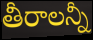
తీరాలన్నీ